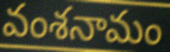
వంశనామం